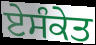
ਏਸੰਕੇਤ